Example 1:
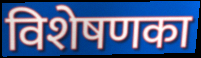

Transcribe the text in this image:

विशेषणका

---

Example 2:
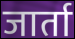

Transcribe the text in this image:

जार्ता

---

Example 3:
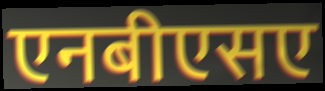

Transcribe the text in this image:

एनबीएसए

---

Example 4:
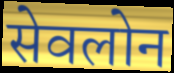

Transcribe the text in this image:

सेवलोन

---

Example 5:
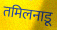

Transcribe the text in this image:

तमिलनाडू